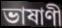
ভাষাণী